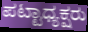
ಪಟ್ಟಾಧ್ಯಕ್ಷರು